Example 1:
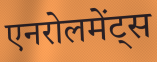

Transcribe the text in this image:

एनरोलमेंट्स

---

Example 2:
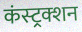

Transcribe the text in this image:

कंस्‍ट्रक्‍शन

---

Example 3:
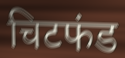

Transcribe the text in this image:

चिटफंड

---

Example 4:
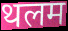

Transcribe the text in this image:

थलम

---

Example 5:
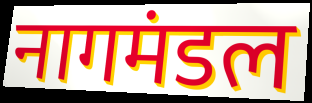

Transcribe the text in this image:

नागमंडल